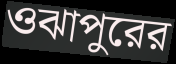
ওঝাপুরের